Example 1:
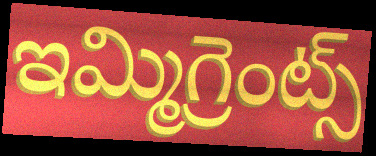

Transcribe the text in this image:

ఇమ్మిగ్రెంట్స్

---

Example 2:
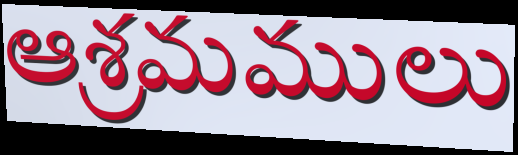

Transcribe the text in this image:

ఆశ్రమములు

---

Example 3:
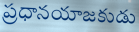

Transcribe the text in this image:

ప్రధానయాజకుడు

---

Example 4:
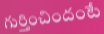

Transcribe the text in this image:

గుర్తించిందంటే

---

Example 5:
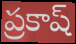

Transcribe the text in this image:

ప్రకాష్